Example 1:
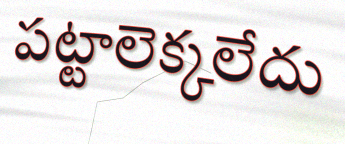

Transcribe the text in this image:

పట్టాలెక్కలేదు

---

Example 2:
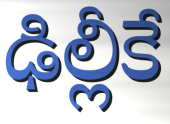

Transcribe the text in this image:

ఢిల్లీకే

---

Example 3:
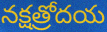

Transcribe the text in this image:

నక్షత్రోదయ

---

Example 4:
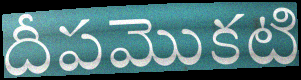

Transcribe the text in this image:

దీపమొకటి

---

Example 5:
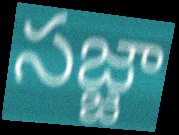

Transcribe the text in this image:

సజ్జా